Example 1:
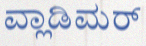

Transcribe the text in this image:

ವ್ಲಾಡಿಮರ್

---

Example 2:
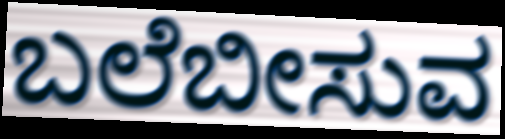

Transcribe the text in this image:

ಬಲೆಬೀಸುವ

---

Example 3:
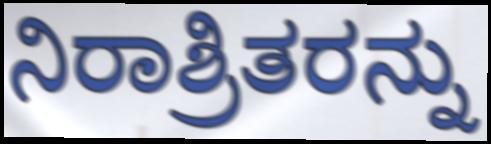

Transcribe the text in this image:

ನಿರಾಶ್ರಿತರನ್ನು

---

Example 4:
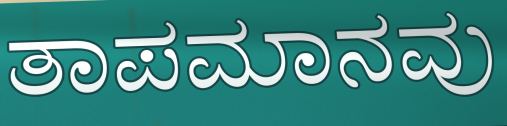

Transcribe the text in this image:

ತಾಪಮಾನವು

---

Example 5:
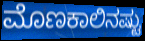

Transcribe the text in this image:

ಮೊಣಕಾಲಿನಷ್ಟು